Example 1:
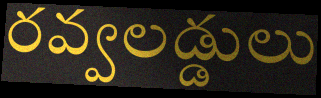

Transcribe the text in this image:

రవ్వలడ్డులు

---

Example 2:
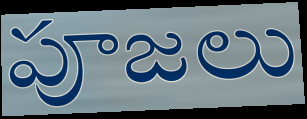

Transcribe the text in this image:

పూజలు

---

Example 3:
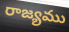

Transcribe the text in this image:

రాజ్యము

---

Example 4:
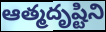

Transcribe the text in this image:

ఆత్మదృష్టిని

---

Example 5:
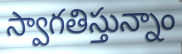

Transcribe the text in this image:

స్వాగతిస్తున్నాం